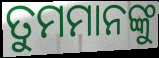
ତୁମମାନଙ୍କୁ